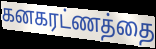
கனகரட்ணத்தை